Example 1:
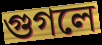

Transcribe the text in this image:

গুগলে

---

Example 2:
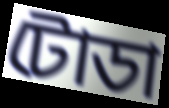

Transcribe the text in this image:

টোডা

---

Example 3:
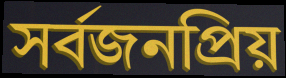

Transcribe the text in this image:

সর্বজনপ্রিয়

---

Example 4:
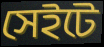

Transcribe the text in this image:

সেইটে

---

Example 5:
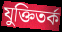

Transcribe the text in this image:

যুক্তিতর্ক